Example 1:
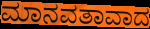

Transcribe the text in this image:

ಮಾನವತಾವಾದ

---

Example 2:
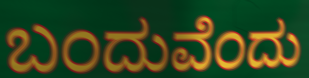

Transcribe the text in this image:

ಬಂದುವೆಂದು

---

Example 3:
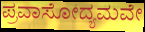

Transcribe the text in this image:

ಪ್ರವಾಸೋದ್ಯಮವೇ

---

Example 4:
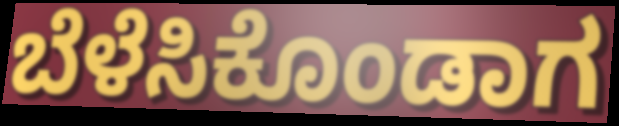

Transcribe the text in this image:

ಬೆಳೆಸಿಕೊಂಡಾಗ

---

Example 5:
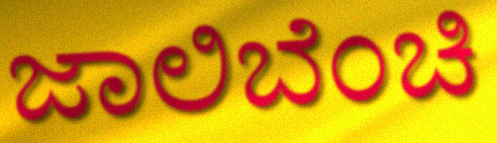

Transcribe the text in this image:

ಜಾಲಿಬೆಂಚಿ